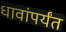
धावांपर्यंत